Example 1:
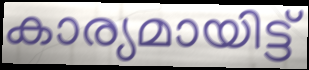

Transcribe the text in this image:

കാര്യമായിട്ട്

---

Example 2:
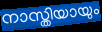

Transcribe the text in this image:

നാസ്തിയായും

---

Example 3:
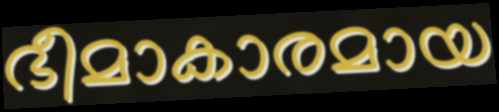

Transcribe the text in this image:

ഭീമാകാരമായ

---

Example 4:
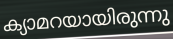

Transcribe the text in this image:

ക്യാമറയായിരുന്നു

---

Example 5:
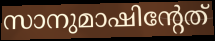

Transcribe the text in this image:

സാനുമാഷിന്റേത്